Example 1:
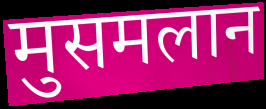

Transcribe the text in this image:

मुसमलान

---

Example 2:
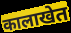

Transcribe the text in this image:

कालाखेत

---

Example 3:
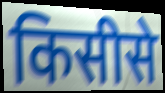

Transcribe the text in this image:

किसीसे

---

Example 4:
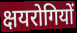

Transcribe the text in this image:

क्षयरोगियों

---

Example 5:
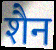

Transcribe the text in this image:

शैन